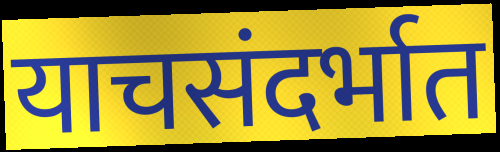
याचसंदर्भात